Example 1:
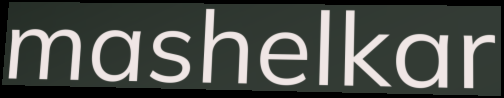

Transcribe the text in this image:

mashelkar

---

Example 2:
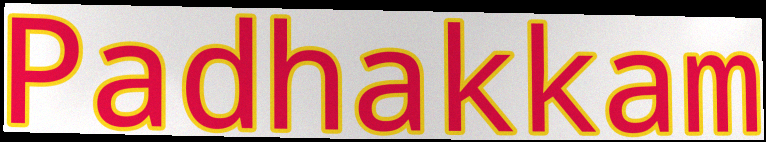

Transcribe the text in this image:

Padhakkam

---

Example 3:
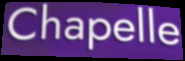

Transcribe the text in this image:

Chapelle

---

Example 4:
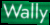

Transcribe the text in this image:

Wally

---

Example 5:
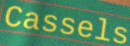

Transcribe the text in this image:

Cassels